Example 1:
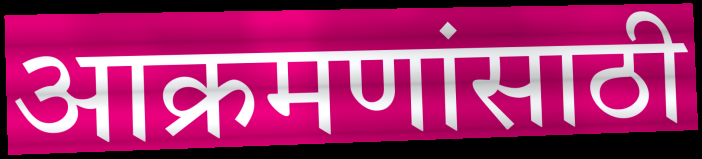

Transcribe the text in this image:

आक्रमणांसाठी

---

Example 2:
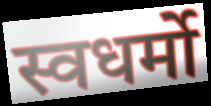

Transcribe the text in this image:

स्वधर्मो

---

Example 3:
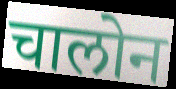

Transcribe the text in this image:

चालोन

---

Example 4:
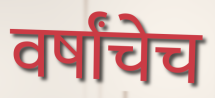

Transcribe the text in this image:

वर्षांचेच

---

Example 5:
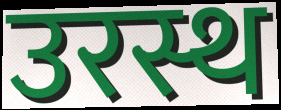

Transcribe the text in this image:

उरस्थ